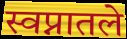
स्वप्नातले